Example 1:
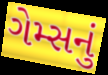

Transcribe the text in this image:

ગેમ્સનું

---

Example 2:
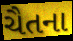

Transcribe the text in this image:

ચૈતના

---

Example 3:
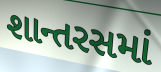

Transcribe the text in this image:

શાન્તરસમાં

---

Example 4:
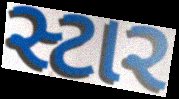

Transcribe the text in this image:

સ્ટાર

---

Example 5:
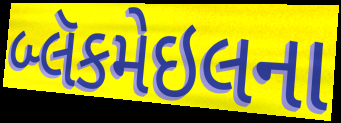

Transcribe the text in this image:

બ્લૅકમેઇલના